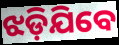
ଝଡ଼ିଯିବେ